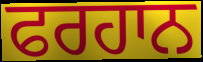
ਫਰਹਾਨ